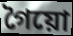
গৈয়ো